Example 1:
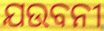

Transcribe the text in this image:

ଯଉବନୀ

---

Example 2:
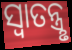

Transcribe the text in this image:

ସ୍ବାତନ୍ତ୍ରୢ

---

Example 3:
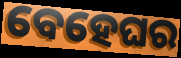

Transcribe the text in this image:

ବେହେଘର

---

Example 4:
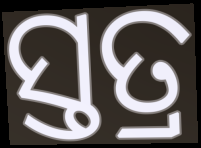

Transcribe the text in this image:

ସ୍ତତ୍ର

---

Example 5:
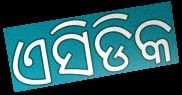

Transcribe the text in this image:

ଏସିଡିକ